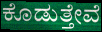
ಕೊಡುತ್ತೇವೆ